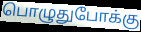
பொழுதுபோக்கு